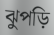
ঝুপড়ি